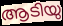
ആടിയു